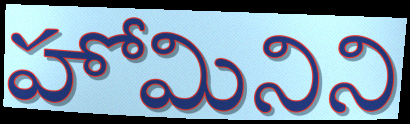
హోమినిని